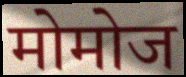
मोमोज